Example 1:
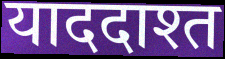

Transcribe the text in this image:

याददाश्त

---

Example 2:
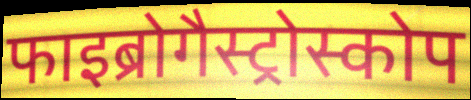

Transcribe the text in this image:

फाइब्रोगैस्ट्रोस्कोप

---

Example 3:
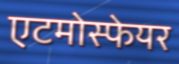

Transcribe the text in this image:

एटमोस्फेयर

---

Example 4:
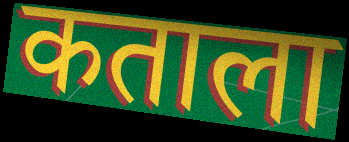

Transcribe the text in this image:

कताला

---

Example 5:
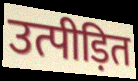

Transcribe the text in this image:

उत्पीड़ित